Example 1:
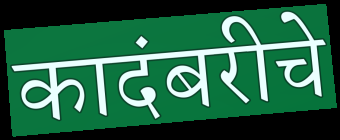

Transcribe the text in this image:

कादंबरीचे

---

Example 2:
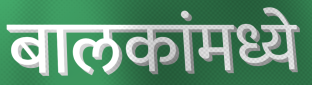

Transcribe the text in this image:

बालकांमध्ये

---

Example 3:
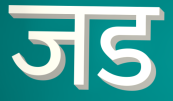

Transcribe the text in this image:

जड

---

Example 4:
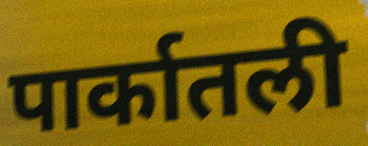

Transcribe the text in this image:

पार्कातली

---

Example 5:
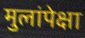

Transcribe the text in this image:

मुलांपेक्षा